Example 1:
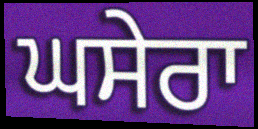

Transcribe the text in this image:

ਘਸੇਰਾ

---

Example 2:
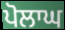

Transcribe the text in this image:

ਪੋਲਾਘ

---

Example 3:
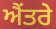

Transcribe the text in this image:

ਐਂਤਰੇ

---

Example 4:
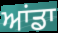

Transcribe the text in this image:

ਆਂਡਾ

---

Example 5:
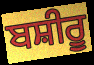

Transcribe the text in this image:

ਬਸ਼ੀਰੂ